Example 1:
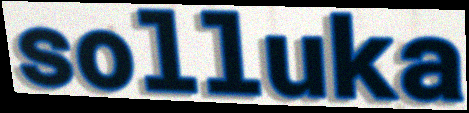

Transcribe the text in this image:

solluka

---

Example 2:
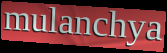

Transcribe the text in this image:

mulanchya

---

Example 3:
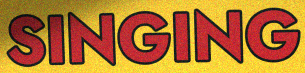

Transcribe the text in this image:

SINGING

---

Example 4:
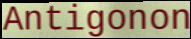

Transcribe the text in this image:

Antigonon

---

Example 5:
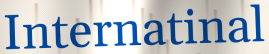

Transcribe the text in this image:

Internatinal